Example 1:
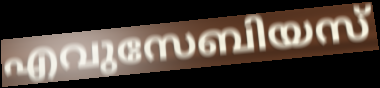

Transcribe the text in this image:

എവുസേബിയസ്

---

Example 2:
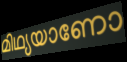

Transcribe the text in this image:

മിഥ്യയാണോ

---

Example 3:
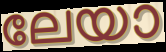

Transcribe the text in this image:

ലേയാ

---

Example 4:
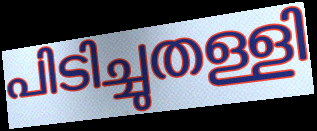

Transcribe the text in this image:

പിടിച്ചുതള്ളി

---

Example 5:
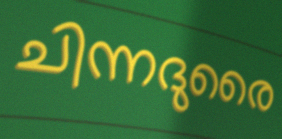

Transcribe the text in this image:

ചിന്നദുരൈ